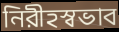
নিরীহস্বভাব